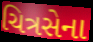
ચિત્રસેના